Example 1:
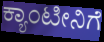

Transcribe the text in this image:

ಕ್ಯಾಂಟೀನಿಗೆ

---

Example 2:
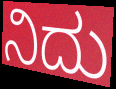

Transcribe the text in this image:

ನಿದು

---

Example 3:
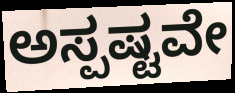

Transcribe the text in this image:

ಅಸ್ಪಷ್ಟವೇ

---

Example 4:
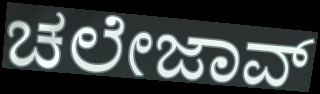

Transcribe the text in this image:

ಚಲೇಜಾವ್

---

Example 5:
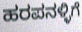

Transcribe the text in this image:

ಹರಪನಳ್ಳಿಗೆ